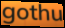
gothu